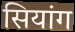
सियांग